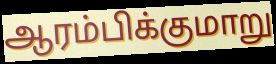
ஆரம்பிக்குமாறு